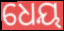
ଧେୟ